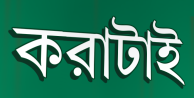
করাটাই